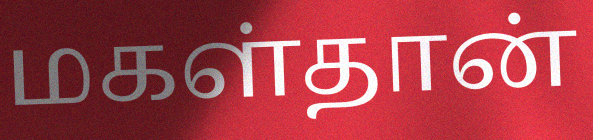
மகள்தான்